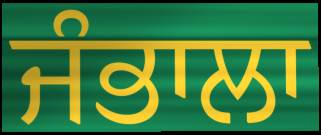
ਜੰਭਾਲਾ